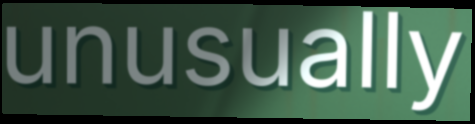
unusually